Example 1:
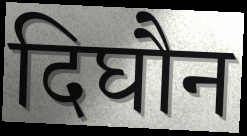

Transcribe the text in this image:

दिघौन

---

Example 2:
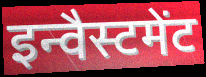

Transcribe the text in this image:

इन्वैस्टमेंट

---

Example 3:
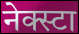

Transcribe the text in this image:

नेक्स्टा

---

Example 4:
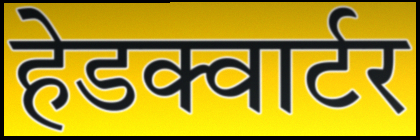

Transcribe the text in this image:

हेडक्वार्टर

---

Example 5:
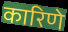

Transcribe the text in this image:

कारिणे